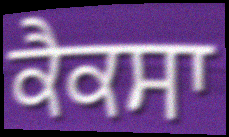
ਕੈਕਸਾ